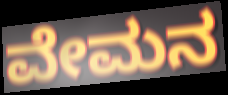
ವೇಮನ